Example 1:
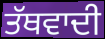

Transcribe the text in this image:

ਤੱਥਵਾਦੀ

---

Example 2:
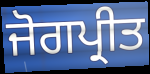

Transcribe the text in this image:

ਜੋਗਪ੍ਰੀਤ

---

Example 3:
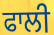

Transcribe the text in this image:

ਫਾਲੀ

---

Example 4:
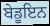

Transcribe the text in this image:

ਬੇਡੂਇਨ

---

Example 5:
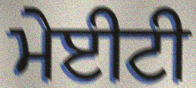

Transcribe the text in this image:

ਮੇਈਟੀ